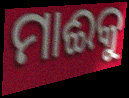
ମାଈକୁ